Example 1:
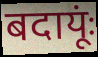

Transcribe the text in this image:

बदायूंः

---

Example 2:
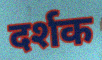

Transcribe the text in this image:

दर्शक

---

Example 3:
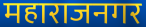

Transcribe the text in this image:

महाराजनगर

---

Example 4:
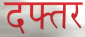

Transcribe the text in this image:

दफ्तर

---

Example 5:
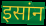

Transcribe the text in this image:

इसांन